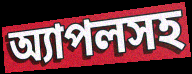
অ্যাপলসহ